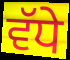
ਵੱਧੇ